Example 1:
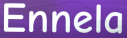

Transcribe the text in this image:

Ennela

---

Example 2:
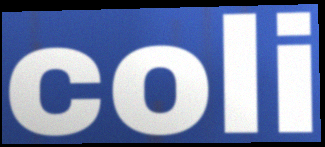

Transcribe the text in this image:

coli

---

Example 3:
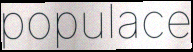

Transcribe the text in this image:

populace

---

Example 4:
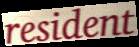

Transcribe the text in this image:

resident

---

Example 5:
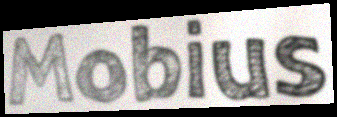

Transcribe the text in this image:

Mobius